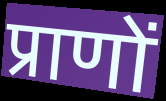
प्राणों